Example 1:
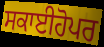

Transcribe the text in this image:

ਸਕਾਈਹੋਪਰ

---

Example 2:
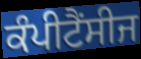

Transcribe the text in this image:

ਕੰਪੀਟੈਂਸੀਜ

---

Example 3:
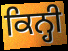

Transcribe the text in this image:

ਕਿਨ੍ਹੀ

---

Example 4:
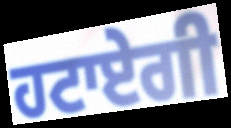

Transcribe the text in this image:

ਹਟਾਏਗੀ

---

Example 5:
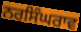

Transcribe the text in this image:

ਨਰਸਿੰਘਰਾਵ